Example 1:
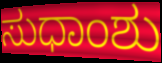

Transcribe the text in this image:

ಸುಧಾಂಶು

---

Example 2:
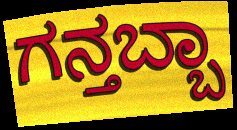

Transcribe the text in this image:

ಗನ್ತಬ್ಬಾ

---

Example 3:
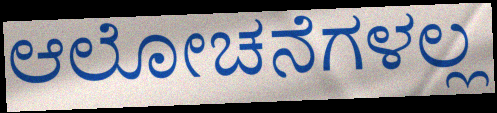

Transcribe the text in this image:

ಆಲೋಚನೆಗಳಲ್ಲ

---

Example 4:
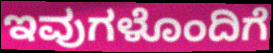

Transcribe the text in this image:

ಇವುಗಳೊಂದಿಗೆ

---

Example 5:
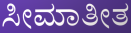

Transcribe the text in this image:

ಸೀಮಾತೀತ